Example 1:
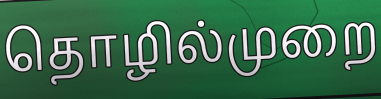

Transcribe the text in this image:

தொழில்முறை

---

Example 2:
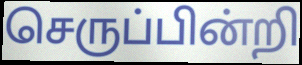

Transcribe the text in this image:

செருப்பின்றி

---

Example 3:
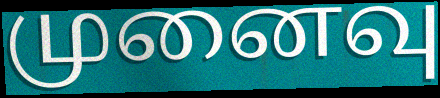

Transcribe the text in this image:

முனைவு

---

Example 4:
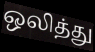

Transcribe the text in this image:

ஒலித்து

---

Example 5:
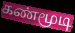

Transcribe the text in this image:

கண்மூடி